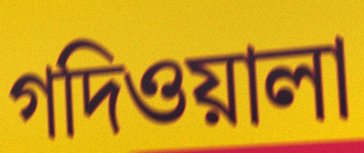
গদিওয়ালা